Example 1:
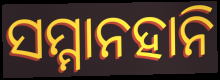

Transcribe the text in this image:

ସମ୍ମାନହାନି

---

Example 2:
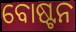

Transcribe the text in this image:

ବୋଷ୍ଟନ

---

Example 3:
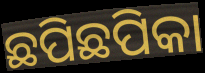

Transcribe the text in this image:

ଛପିଛପିକା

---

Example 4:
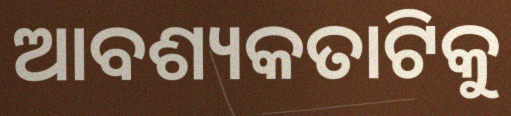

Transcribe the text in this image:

ଆବଶ୍ୟକତାଟିକୁ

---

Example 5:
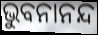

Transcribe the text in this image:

ଭୁବନାନନ୍ଦ